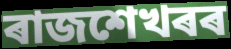
ৰাজশেখৰৰ